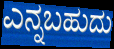
ಎನ್ನಬಹುದು